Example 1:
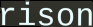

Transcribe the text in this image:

rison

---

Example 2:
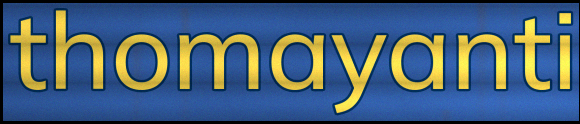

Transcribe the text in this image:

thomayanti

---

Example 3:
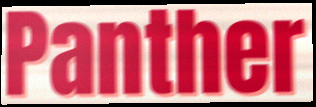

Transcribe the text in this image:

Panther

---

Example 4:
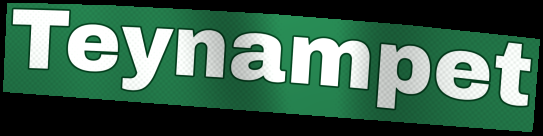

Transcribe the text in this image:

Teynampet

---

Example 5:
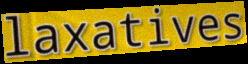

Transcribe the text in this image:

laxatives